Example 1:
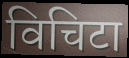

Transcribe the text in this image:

विचिटा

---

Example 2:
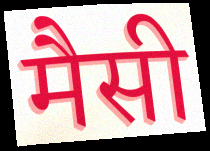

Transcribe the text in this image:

मैसी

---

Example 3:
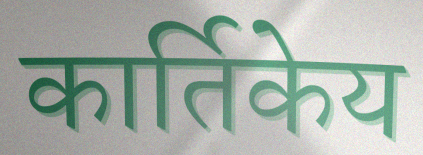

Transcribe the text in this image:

कार्तिकेय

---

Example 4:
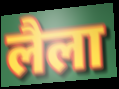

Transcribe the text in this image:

लैला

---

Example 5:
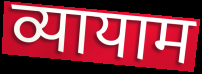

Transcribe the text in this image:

व्यायाम